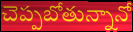
చెప్పబోతున్నానో